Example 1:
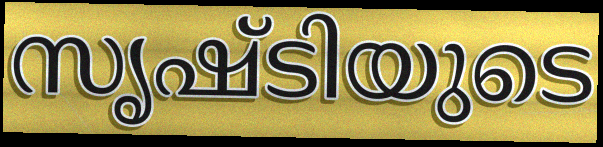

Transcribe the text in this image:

സൃഷ്ടിയുടെ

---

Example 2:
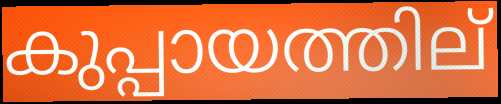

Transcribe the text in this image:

കുപ്പായത്തില്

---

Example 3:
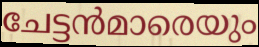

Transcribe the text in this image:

ചേട്ടൻമാരെയും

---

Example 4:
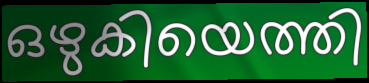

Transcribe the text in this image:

ഒഴുകിയെത്തി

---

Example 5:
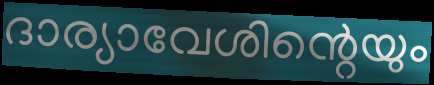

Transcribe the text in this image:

ദാര്യാവേശിന്റെയും